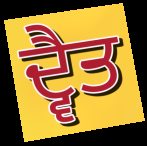
ਦ੍ਵੈਤ